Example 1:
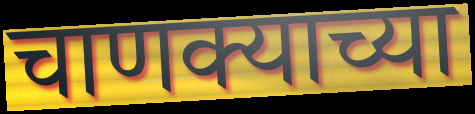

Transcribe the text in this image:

चाणक्याच्या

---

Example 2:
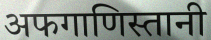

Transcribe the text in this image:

अफगाणिस्तानी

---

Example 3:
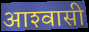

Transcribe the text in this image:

आश्वासी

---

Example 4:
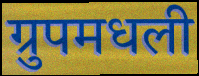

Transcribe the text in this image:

ग्रुपमधली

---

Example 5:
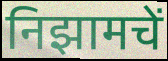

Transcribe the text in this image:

निझामचें